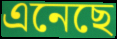
এনেছে